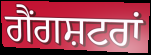
ਗੈਂਗਸ਼ਟਰਾਂ